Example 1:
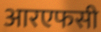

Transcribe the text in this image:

आरएफसी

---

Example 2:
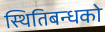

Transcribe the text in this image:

स्थितिबन्धको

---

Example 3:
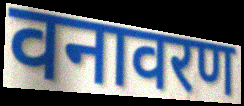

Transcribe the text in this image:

वनावरण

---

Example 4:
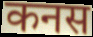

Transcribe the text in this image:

कनस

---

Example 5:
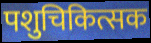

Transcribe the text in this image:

पशुचिकित्सक